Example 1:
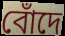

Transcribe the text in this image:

বোঁদে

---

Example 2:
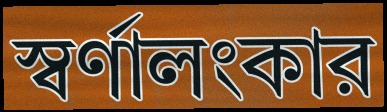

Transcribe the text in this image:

স্বর্ণালংকার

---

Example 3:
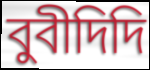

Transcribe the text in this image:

বুবীদিদি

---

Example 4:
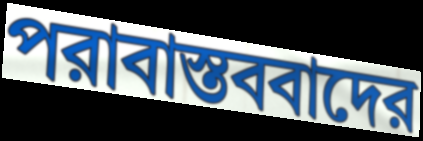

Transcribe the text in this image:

পরাবাস্তববাদের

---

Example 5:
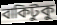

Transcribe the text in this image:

বাকিটুকু